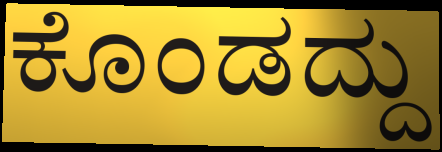
ಕೊಂಡದ್ದು